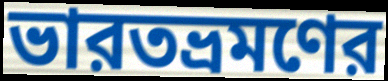
ভারতভ্রমণের